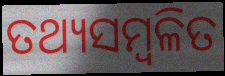
ତଥ୍ୟସମ୍ୱଳିତ